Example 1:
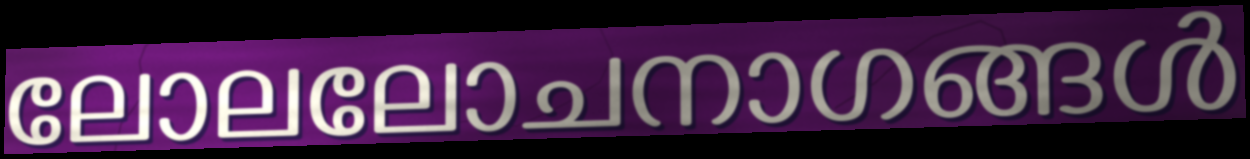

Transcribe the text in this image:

ലോലലോചനാഗങ്ങൾ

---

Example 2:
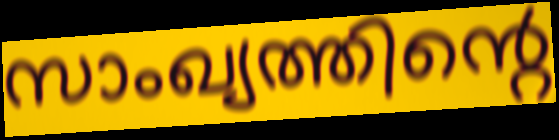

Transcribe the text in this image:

സാംഖ്യത്തിന്റെ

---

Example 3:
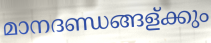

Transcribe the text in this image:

മാനദണ്ഡങ്ങള്ക്കും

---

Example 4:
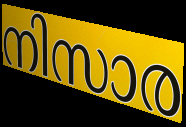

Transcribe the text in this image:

നിസാര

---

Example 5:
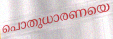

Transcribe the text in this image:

പൊതുധാരണയെ